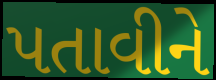
પતાવીને